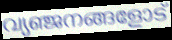
വ്യഞ്ജനങ്ങളോട്